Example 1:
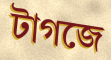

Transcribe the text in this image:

টাগজে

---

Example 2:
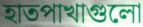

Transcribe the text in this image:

হাতপাখাগুলো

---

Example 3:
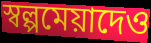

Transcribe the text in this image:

স্বল্পমেয়াদেও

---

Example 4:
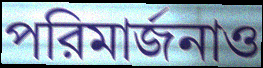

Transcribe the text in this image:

পরিমার্জনাও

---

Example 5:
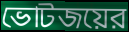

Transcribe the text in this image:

ভোটজয়ের